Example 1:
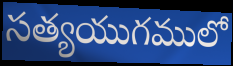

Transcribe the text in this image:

సత్యయుగములో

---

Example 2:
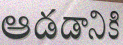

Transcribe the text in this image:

ఆడడానికి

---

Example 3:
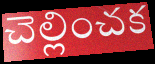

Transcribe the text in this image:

చెల్లించక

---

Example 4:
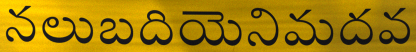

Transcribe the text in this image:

నలుబదియెనిమదవ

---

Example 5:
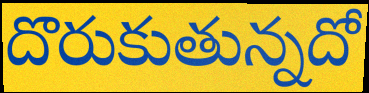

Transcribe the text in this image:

దొరుకుతున్నదో